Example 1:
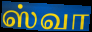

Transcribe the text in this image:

ஸ்வா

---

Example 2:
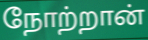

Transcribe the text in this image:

நோற்றான்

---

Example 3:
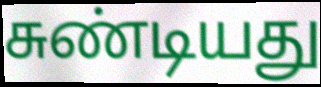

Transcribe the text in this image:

சுண்டியது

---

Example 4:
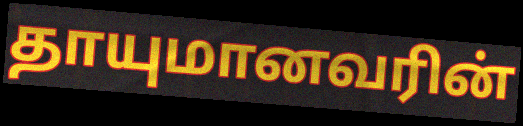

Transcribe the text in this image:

தாயுமானவரின்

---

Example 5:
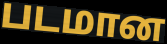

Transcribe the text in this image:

படமான